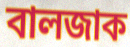
বালজাক